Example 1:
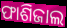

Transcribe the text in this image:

ଫାଶିଜାଲ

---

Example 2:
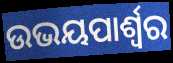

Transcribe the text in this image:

ଉଭୟପାର୍ଶ୍ୱର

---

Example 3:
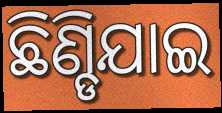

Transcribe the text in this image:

ଛିଣ୍ଡିଯାଇ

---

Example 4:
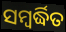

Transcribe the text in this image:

ସମ୍ବର୍ଦ୍ଧିତ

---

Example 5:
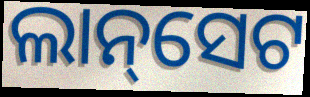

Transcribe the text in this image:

ଲାନ୍‌ସେଟ